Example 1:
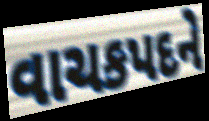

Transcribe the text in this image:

વાચકપદને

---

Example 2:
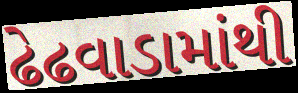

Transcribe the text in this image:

ઢેઢવાડામાંથી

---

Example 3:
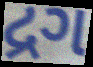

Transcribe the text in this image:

દ્રગ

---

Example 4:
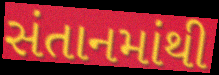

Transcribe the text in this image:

સંતાનમાંથી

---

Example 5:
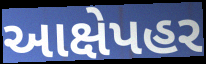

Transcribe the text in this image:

આક્ષેપહર